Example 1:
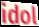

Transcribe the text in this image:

idol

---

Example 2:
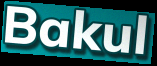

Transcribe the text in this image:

Bakul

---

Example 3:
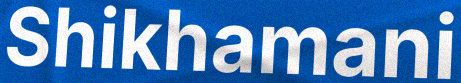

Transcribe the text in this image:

Shikhamani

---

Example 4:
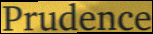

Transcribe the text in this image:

Prudence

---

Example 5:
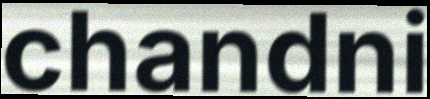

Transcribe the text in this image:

chandni